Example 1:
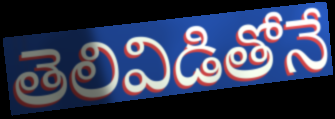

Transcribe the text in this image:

తెలివిడితోనే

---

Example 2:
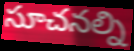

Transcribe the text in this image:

సూచనల్ని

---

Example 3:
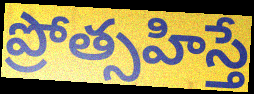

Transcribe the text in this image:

ప్రోత్సహిస్తే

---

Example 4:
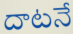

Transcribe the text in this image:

దాటనే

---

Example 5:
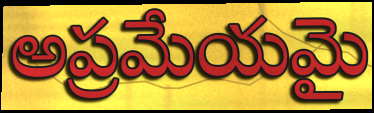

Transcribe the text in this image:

అప్రమేయమై